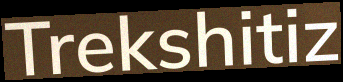
Trekshitiz